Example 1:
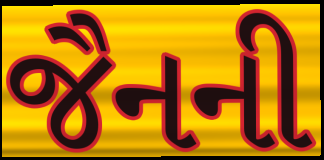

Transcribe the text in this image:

જૈનની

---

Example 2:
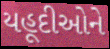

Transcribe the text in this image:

યહૂદીઓને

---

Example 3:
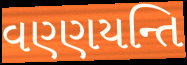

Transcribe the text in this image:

વણ્ણયન્તિ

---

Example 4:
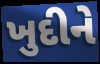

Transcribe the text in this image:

ખુદીને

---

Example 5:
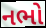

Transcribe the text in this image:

નભો